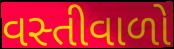
વસ્તીવાળો